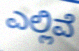
ಎಲ್ಲಿವೆ